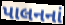
પાલનનાં